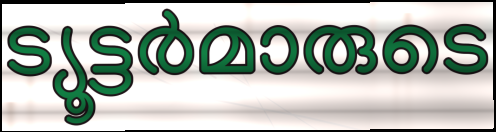
ട്യൂട്ടർമാരുടെ